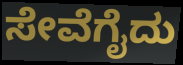
ಸೇವೆಗೈದು